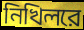
নিখিলরে